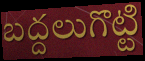
బద్దలుగొట్టి